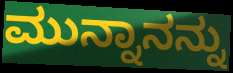
ಮುನ್ನಾನನ್ನು